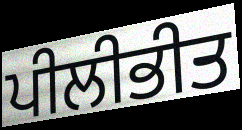
ਪੀਲੀਭੀਤ